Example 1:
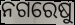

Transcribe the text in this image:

ନଗରେଷୁ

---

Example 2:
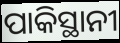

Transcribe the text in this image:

ପାକିସ୍ଥାନୀ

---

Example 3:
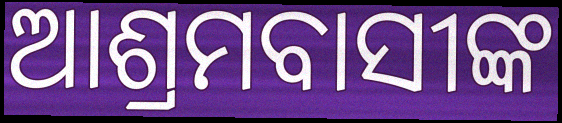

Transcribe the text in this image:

ଆଶ୍ରମବାସୀଙ୍କ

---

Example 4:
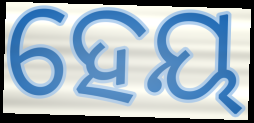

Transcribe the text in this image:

ହେୟ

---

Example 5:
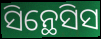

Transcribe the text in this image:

ସିନ୍ଥେସିସ